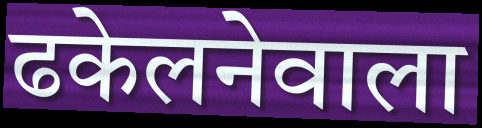
ढकेलनेवाला